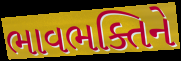
ભાવભક્તિને